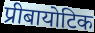
प्रीबायोटिक